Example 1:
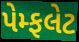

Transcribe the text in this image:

પેમ્ફલેટ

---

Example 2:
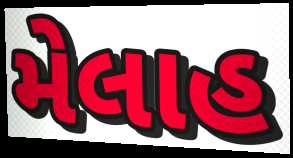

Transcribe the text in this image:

મેલાહ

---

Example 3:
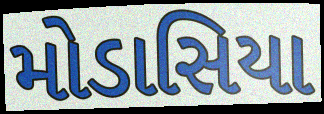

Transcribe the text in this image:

મોડાસિયા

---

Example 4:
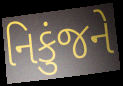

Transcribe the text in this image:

નિકુંજને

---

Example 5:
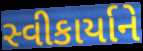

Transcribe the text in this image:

સ્વીકાર્યાને